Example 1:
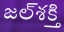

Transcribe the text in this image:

జల్‌శక్తి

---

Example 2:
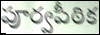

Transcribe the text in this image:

పూర్వపీఠిక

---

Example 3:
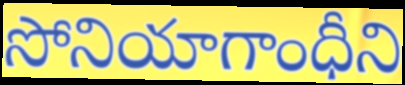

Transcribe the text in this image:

సోనియాగాంధీని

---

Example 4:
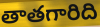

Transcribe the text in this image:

తాతగారిది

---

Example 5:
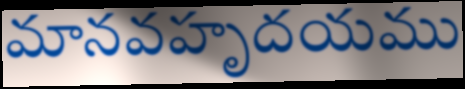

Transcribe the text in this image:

మానవహృదయము